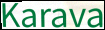
Karava